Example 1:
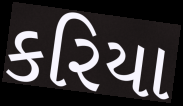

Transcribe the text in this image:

કરિયા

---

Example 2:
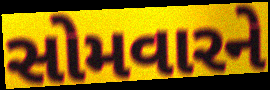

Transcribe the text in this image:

સોમવારને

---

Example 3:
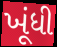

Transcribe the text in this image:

ખૂંધી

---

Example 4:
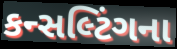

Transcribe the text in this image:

કન્સલ્ટિંગના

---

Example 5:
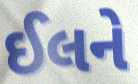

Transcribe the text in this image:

ઈલને